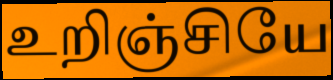
உறிஞ்சியே